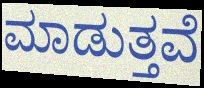
ಮಾಡುತ್ತವೆ